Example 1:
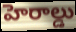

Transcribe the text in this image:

హెరాల్డు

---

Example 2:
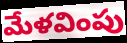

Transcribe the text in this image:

మేళవింపు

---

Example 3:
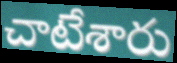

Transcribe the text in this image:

చాటేశారు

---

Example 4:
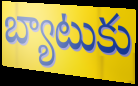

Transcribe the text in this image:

బ్యాటుకు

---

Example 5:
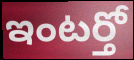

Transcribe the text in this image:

ఇంటర్తో